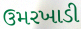
ઉમરખાડી